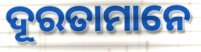
ଦୂରତାମାନେ